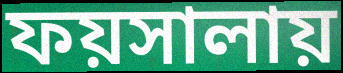
ফয়সালায়